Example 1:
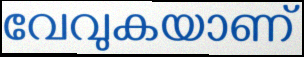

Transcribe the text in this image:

വേവുകയാണ്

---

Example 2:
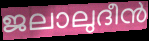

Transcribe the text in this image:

ജലാലുദീൻ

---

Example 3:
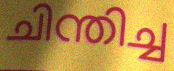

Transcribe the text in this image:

ചിന്തിച്ച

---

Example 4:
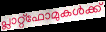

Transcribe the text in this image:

പ്ലാറ്റ്ഫോമുകൾക്ക്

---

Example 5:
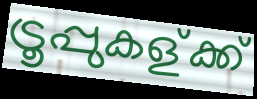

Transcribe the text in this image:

ട്രൂപ്പുകള്ക്ക്